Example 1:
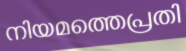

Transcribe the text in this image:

നിയമത്തെപ്രതി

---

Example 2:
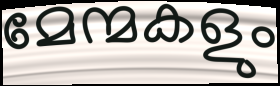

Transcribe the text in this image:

മേന്മകളും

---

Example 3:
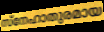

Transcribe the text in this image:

സ്നേഹാതുരമായ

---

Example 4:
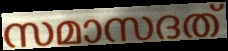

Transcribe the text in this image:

സമാസദത്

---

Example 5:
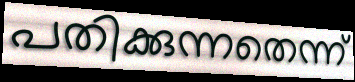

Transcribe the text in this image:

പതിക്കുന്നതെന്ന്